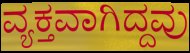
ವ್ಯಕ್ತವಾಗಿದ್ದವು